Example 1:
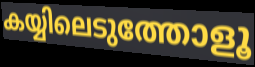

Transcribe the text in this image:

കയ്യിലെടുത്തോളൂ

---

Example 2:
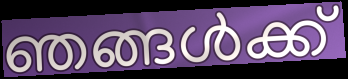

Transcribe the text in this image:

ഞങ്ങൾക്ക്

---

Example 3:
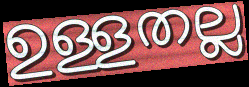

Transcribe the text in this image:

ഉള്ളതല്ല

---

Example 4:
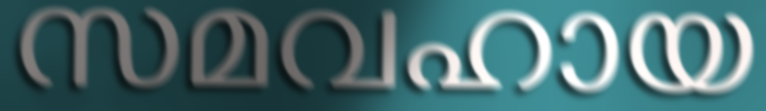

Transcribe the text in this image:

സമവഹായ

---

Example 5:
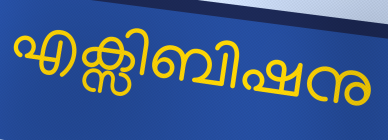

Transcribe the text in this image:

എക്സിബിഷനു